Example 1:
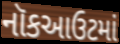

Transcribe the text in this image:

નૉકઆઉટમાં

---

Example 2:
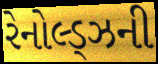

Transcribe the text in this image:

રેનોલ્ડ્ઝની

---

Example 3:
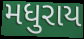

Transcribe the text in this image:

મધુરાય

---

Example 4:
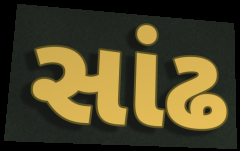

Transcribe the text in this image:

સાંઢ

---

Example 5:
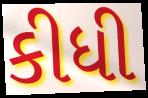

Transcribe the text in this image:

કીધી